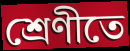
শ্ৰেণীতে